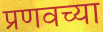
प्रणवच्या